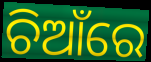
ଚିଆଁରେ